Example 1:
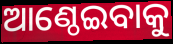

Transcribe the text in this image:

ଆଣ୍ଠେଇବାକୁ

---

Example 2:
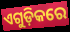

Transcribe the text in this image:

ଏଗୁଡ଼ିକରେ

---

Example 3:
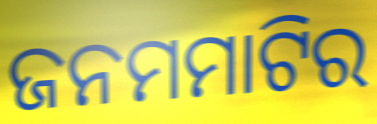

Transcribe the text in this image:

ଜନମମାଟିର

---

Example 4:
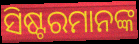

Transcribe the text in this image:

ସିଷ୍ଟରମାନଙ୍କ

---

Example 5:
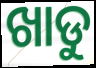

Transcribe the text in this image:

ଖାଡୁ